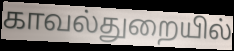
காவல்துறையில்